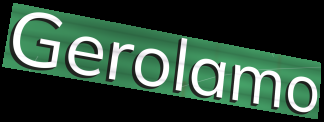
Gerolamo